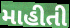
માહીતી